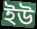
ইউ